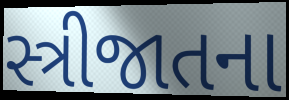
સ્ત્રીજાતના